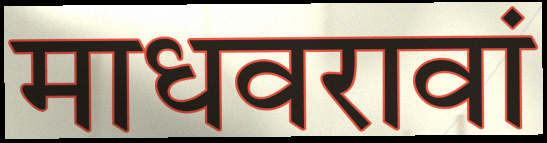
माधवरावां